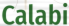
Calabi